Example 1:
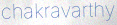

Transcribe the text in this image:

chakravarthy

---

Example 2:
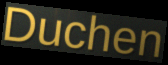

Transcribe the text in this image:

Duchen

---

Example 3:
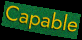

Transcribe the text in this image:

Capable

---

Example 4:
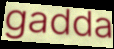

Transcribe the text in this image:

gadda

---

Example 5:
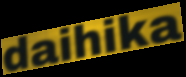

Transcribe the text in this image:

daihika